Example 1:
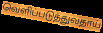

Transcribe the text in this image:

வெளிப்படுத்துவதாய்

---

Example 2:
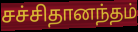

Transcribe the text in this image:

சச்சிதானந்தம்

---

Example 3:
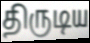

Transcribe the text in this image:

திருடிய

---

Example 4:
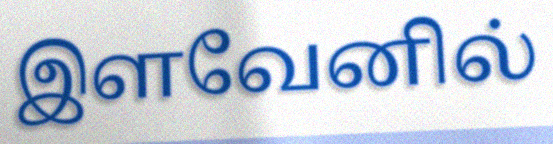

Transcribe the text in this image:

இளவேனில்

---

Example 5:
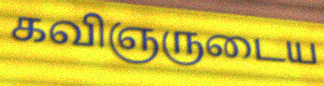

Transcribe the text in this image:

கவிஞருடைய